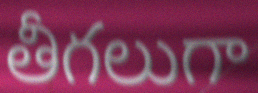
తీగలుగా